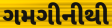
ગમગીનીથી